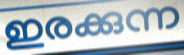
ഇരക്കുന്ന